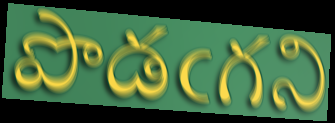
పొడఁగని